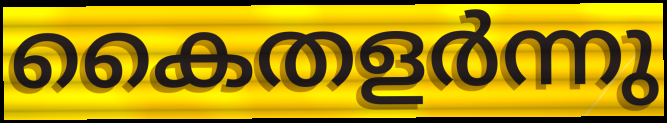
കൈതളർന്നു